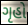
ગૃહો